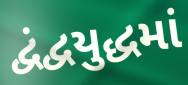
દ્વંદ્વયુદ્ધમાં